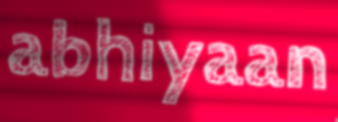
abhiyaan